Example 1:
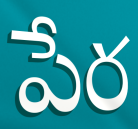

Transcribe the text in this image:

పేర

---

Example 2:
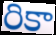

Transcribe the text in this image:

రికా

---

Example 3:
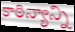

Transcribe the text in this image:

కాఠిన్యాన్ని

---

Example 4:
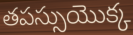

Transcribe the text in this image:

తపస్సుయొక్క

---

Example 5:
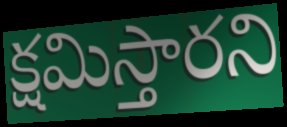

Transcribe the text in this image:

క్షమిస్తారని